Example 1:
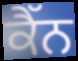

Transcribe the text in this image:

ਕੈੱਨ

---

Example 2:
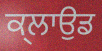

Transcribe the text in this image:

ਕ੍ਲਾਉਡ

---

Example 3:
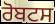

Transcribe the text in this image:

ਰੋਬਟਸ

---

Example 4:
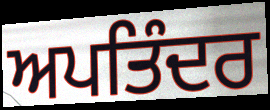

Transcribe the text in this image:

ਅਪਤਿੰਦਰ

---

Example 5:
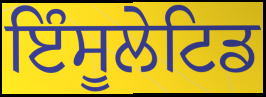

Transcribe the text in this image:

ਇੰਸੂਲੇਟਿਡ